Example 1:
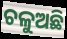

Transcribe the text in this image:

ଚଳୁଅଛି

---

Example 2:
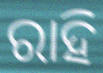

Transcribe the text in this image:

ରାହି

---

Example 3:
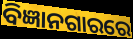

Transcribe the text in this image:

ବିଜ୍ଞାନଗାରରେ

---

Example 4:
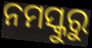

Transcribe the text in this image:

ନମସ୍କୁରୁ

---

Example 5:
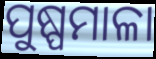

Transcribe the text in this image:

ପୁଷ୍ପମାଳା